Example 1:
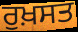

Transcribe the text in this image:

ਰੁਖ਼ਸਤ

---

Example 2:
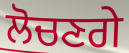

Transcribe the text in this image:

ਲੋਚਣਗੇ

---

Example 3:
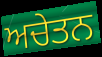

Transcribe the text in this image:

ਅਚੇਤਨ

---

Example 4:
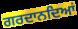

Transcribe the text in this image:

ਗਰਦਾਨਦਿਆਂ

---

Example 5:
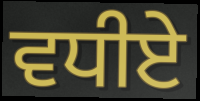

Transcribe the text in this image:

ਵਧੀਏ